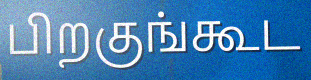
பிறகுங்கூட